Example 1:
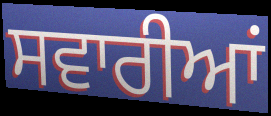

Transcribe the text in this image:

ਸਵਾਰੀਆਂ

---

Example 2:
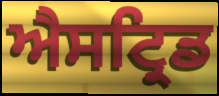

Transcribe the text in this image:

ਐਸਟ੍ਰਿਡ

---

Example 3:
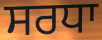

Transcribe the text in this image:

ਸਰਧਾ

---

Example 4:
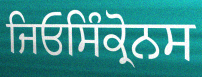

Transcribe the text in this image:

ਜਿਓਸਿੰਕ੍ਰੋਨਸ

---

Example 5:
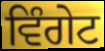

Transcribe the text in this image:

ਵਿੰਗੇਟ